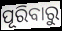
ପୂରିବାରୁ